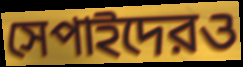
সেপাইদেরও